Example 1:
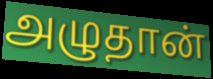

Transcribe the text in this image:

அழுதான்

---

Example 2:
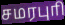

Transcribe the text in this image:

சமரபுரி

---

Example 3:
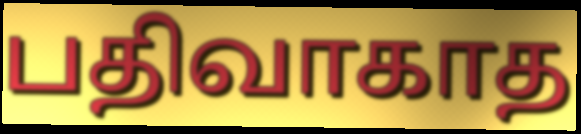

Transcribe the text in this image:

பதிவாகாத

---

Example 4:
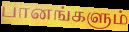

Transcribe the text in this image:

பானங்களும்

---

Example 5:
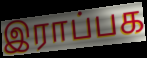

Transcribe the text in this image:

இராப்பக